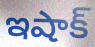
ఇషాక్